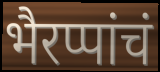
भैरप्पांचं